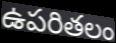
ఉపరితలం